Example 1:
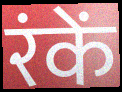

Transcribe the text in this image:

रंकें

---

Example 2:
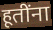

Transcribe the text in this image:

हूतींना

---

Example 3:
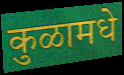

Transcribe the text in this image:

कुळामधे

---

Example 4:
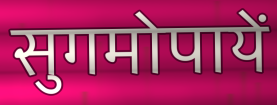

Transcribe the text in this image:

सुगमोपायें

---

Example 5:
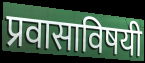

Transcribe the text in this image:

प्रवासाविषयी